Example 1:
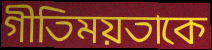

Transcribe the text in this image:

গীতিময়তাকে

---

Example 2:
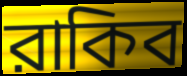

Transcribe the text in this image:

রাকিব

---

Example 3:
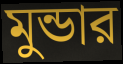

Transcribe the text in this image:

মুন্ডার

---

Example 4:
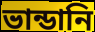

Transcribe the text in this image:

ভান্ডানি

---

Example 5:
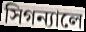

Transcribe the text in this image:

সিগন্যালে